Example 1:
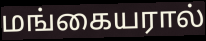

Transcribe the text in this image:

மங்கையரால்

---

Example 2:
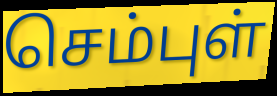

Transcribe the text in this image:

செம்புள்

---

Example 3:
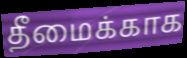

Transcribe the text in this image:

தீமைக்காக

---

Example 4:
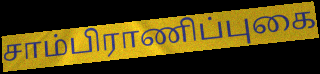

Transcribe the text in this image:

சாம்பிராணிப்புகை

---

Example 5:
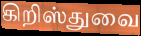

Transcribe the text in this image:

கிறிஸ்துவை